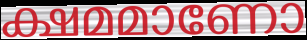
ക്ഷമമാണോ